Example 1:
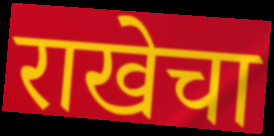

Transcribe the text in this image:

राखेचा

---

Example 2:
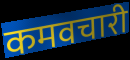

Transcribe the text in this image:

कमवचारी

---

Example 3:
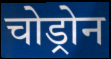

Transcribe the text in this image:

चोड्रोन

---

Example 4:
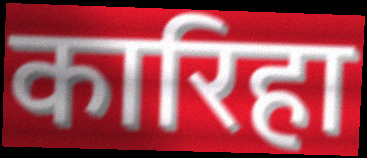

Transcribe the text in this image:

कारिहा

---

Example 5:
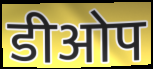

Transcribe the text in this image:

डीओप